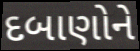
દબાણોને